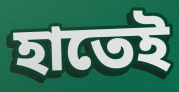
হাতেই